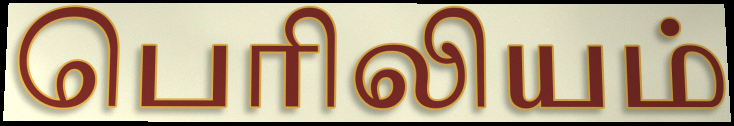
பெரிலியம்